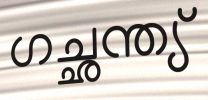
ഗച്ഛന്ത്യ്